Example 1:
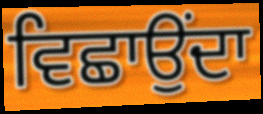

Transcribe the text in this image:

ਵਿਛਾਉਂਦਾ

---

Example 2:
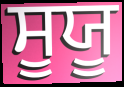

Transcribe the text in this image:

ਸੂਯੂ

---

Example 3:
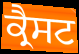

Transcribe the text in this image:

ਕ੍ਰੈਸਟ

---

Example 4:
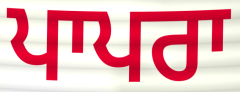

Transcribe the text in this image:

ਪਾਪਰਾ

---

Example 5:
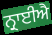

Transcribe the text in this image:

ਨ੍ਰਾਈਐ